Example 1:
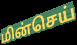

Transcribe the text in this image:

மின்செய்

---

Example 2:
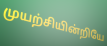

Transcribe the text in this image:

முயற்சியின்றியே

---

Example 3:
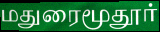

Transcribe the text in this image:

மதுரைமூதூர்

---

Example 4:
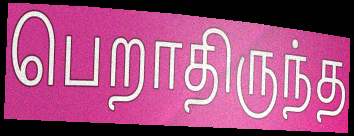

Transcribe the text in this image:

பெறாதிருந்த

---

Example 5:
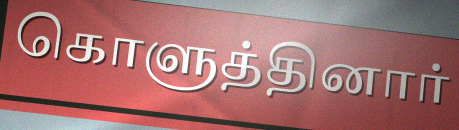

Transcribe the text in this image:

கொளுத்தினார்